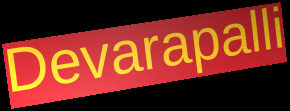
Devarapalli